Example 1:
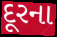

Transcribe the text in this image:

દૂરના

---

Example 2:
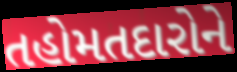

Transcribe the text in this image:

તહોમતદારોને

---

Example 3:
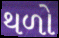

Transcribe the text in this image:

થળો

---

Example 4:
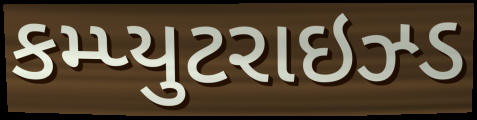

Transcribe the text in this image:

કમ્પ્યુટરાઇઝ્ડ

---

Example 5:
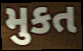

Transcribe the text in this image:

મુકત